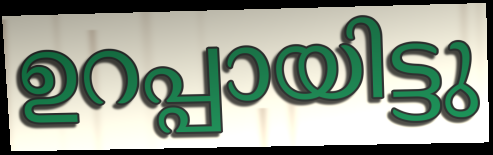
ഉറപ്പായിട്ടു